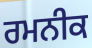
ਰਮਨੀਕ